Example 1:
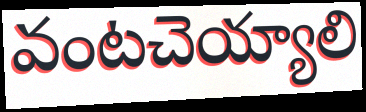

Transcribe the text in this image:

వంటచెయ్యాలి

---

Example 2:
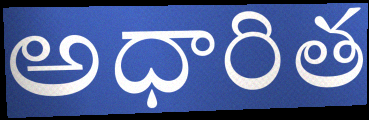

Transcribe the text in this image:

అధారిత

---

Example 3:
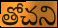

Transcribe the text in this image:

తోచని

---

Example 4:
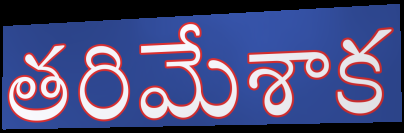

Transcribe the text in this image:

తరిమేశాక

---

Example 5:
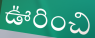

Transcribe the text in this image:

ఊరించి